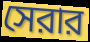
সেরার